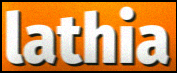
lathia